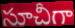
సూచీగా